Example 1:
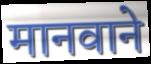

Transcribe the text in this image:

मानवाने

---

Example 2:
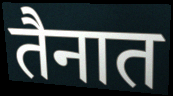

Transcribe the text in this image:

तैनात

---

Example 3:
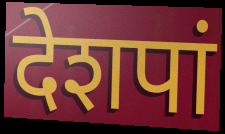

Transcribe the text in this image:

देशपां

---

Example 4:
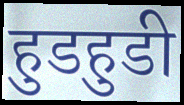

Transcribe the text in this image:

हुडहुडी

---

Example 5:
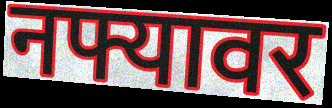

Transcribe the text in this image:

नफ्यावर